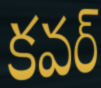
కవర్